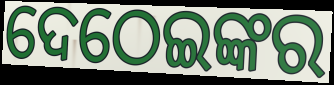
ଦେଠେଇଙ୍କର